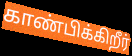
காண்பிக்கிறீர்